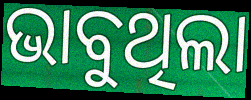
ଭାବୁଥିଲା